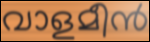
വാളമീൻ